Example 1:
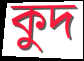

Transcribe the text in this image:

কুদ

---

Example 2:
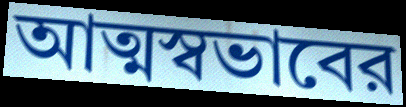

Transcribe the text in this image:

আত্মস্বভাবের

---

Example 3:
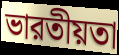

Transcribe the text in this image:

ভারতীয়তা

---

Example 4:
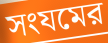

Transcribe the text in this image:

সংযমের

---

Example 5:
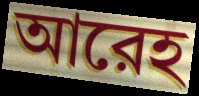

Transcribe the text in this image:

আরেহ